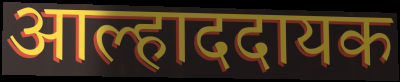
आल्हाददायक